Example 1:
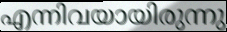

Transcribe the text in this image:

എന്നിവയായിരുന്നു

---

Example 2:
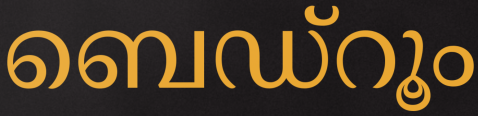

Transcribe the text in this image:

ബെഡ്റൂം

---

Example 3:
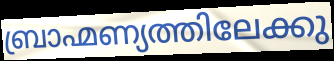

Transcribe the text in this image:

ബ്രാഹ്മണ്യത്തിലേക്കു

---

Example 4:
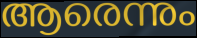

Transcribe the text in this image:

ആരെന്നും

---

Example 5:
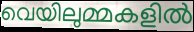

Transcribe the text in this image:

വെയിലുമ്മകളിൽ